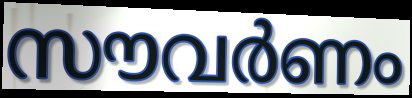
സൗവർണം